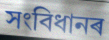
সংবিধানৰ